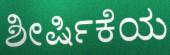
ಶೀರ್ಷಿಕೆಯ